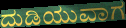
ದುಡಿಯುವಾಗ